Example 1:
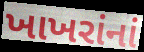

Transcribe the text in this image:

ખાખરાંનાં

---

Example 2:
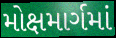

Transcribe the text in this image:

મોક્ષમાર્ગમાં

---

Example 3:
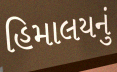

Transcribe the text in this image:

હિમાલયનું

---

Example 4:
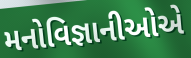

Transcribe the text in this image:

મનોવિજ્ઞાનીઓએ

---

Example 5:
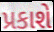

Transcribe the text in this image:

પ્રકાશે